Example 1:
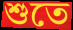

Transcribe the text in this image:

শুতে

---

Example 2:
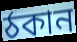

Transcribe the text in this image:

ঠকান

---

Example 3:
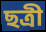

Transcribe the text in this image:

ছত্রী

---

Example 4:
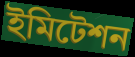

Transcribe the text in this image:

ইমিটেশন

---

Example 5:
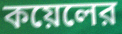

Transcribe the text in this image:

কয়েলের